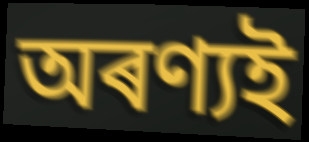
অৰণ্যই